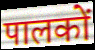
पालकों